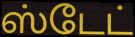
ஸ்டேட்